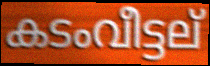
കടംവീട്ടല്